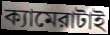
ক্যামেরাটাই